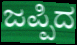
ಜಪ್ಪಿದ